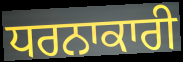
ਧਰਨਾਕਾਰੀ